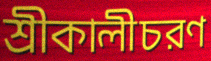
শ্রীকালীচরণ